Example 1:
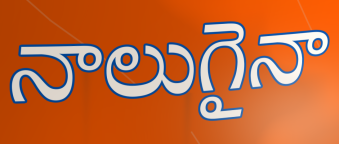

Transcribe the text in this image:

నాలుగైనా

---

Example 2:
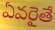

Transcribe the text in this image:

ఏవరైతే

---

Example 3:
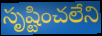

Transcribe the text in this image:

సృష్టించలేని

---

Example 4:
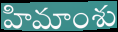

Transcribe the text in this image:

హిమాంశు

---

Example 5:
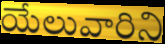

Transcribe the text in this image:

యేలువారిని